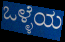
ಒಳ್ಳೆಯ